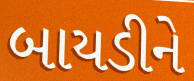
બાયડીને